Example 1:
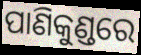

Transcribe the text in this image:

ପାଣିକୁଣ୍ଡରେ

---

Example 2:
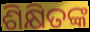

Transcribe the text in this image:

ଶିକ୍ଷିତଙ୍କ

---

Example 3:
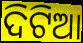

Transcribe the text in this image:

ଦିଟିଆ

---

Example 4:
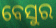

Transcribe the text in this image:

ବେସୁର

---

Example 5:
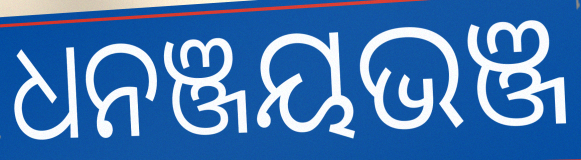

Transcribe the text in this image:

ଧନଞ୍ଜୟଭଞ୍ଜ